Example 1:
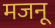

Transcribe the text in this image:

मजनू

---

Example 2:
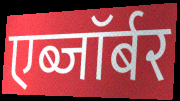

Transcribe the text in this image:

एब्जॉर्बर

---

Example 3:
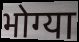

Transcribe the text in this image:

भोग्या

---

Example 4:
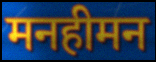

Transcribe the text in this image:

मनहीमन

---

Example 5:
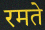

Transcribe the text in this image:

रमते